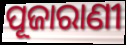
ପୂଜାରାଣୀ